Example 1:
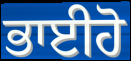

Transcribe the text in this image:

ਭਾਈਹੋ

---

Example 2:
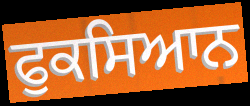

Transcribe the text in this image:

ਫੁਕਸਿਆਨ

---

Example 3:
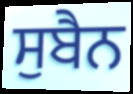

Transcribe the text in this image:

ਸੁਬੈਨ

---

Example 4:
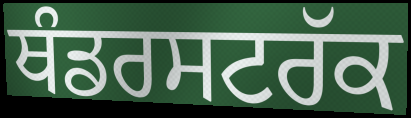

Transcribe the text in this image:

ਥੰਡਰਸਟਰੱਕ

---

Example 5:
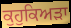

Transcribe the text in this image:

ਕੁਹੁਕਿਅੜਾ